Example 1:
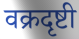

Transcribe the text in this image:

वक्रदृष्टी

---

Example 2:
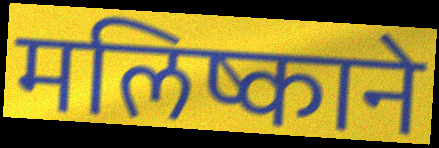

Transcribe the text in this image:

मलिष्काने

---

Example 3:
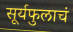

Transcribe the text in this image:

सूर्यफुलाचं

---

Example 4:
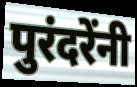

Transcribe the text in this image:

पुरंदरेंनी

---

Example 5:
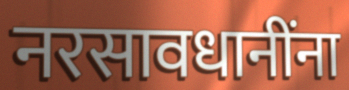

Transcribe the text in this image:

नरसावधानींना